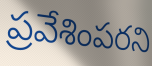
ప్రవేశింపరని